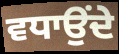
ਵਧਾਉਂਦੇ